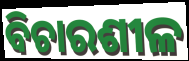
ବିଚାରଶୀଳ